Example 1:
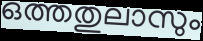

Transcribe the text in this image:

ഒത്തതുലാസും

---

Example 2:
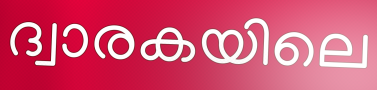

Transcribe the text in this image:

ദ്വാരകയിലെ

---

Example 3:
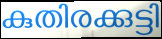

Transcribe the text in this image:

കുതിരക്കുട്ടി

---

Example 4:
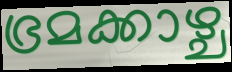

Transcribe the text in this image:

ഭ്രമക്കാഴ്ച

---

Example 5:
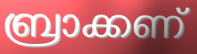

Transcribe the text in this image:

ബ്രാക്കണ്